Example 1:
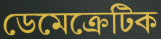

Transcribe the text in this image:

ডেমেক্রেটিক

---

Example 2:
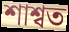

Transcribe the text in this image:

শাশ্বত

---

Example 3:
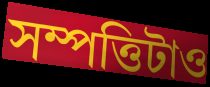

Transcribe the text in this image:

সম্পত্তিটাও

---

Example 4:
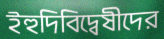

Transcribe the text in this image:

ইহুদিবিদ্বেষীদের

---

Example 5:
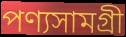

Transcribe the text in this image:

পণ্যসামগ্রী